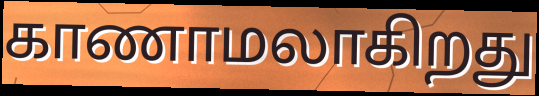
காணாமலாகிறது